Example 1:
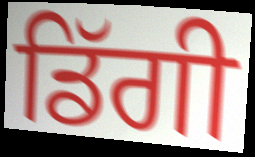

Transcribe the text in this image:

ਡਿੱਗੀ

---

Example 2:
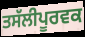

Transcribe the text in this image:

ਤਸੱਲੀਪੂਰਵਕ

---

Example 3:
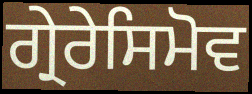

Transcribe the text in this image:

ਗ੍ਰੇਰੇਸਿਮੋਵ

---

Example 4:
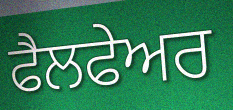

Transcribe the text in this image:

ਫੈਲਫੇਅਰ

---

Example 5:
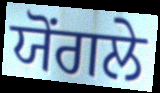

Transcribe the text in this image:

ਯੋਂਗਲੇ